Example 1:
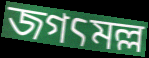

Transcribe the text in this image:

জগৎমল্ল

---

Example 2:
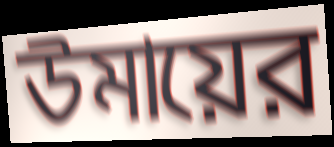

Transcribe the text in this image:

উমায়ের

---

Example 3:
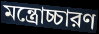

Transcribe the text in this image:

মন্ত্রোচ্চারণ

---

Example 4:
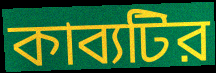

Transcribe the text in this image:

কাব্যটির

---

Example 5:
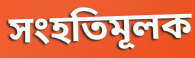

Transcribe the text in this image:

সংহতিমূলক